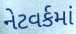
નેટવર્કમાં